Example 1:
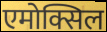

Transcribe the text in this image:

एमोक्सिल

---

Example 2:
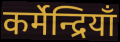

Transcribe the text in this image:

कर्मेन्द्रियाँ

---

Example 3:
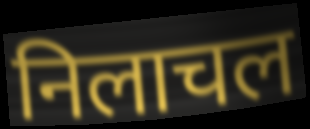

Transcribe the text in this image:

निलाचल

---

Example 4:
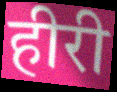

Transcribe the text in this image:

हीरी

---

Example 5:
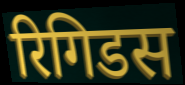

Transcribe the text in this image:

रिगिडस